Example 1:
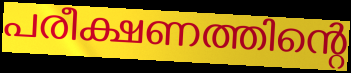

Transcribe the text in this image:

പരീക്ഷണത്തിന്റെ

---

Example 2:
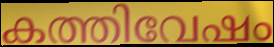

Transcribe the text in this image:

കത്തിവേഷം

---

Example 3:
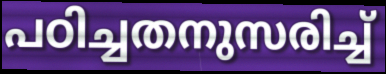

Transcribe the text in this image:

പഠിച്ചതനുസരിച്ച്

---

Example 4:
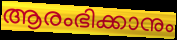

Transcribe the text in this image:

ആരംഭിക്കാനും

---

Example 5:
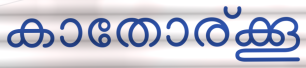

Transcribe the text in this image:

കാതോര്ക്കൂ